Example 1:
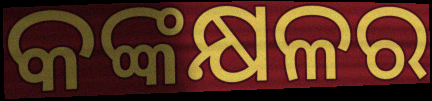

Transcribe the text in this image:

କଙ୍କକ୍ଷଳର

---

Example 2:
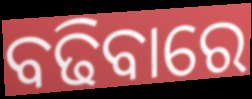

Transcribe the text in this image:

ବଢିବାରେ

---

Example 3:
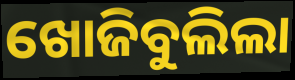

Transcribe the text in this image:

ଖୋଜିବୁଲିଲା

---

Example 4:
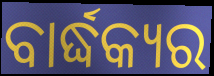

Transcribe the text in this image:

ବାର୍ଦ୍ଧକ୍ୟର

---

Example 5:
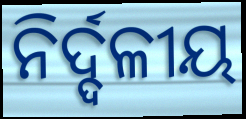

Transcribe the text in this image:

ନିର୍ଦ୍ଦଳୀୟ